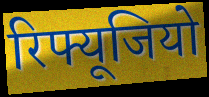
रिफ्यूजियो